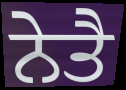
ਨੇਤੈ